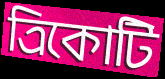
ত্রিকোটি